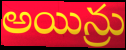
అయిన్రు